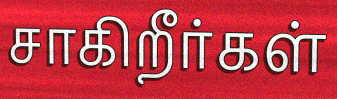
சாகிறீர்கள்